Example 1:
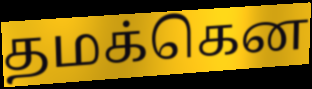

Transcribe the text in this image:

தமக்கென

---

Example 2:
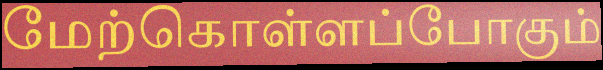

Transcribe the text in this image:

மேற்கொள்ளப்போகும்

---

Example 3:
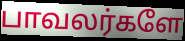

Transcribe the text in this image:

பாவலர்களே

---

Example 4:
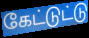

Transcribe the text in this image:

கேட்டுட்டு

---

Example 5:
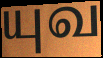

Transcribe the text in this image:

யுவ